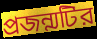
প্রজন্মটির